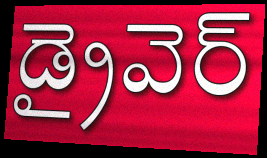
డ్రైవెర్